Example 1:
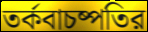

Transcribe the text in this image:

তর্কবাচষ্পতির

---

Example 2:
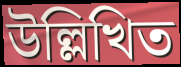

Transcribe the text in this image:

উল্লিখিত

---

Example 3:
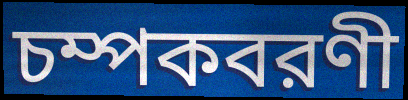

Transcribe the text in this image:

চম্পকবরণী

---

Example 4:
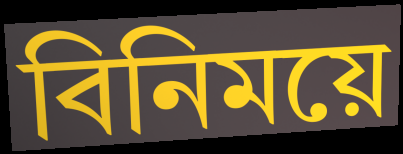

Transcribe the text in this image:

বিনিময়ে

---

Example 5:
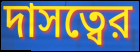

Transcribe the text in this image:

দাসত্বের